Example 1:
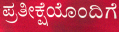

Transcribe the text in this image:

ಪ್ರತೀಕ್ಷೆಯೊಂದಿಗೆ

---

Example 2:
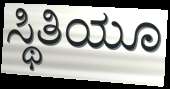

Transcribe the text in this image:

ಸ್ಥಿತಿಯೂ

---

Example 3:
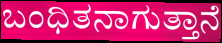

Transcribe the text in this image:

ಬಂಧಿತನಾಗುತ್ತಾನೆ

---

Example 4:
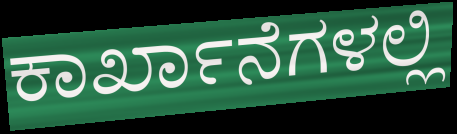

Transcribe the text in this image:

ಕಾರ್ಖಾನೆಗಳಲ್ಲಿ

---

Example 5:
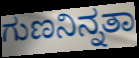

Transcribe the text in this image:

ಗುಣನಿನ್ನತಾ